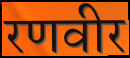
रणवीर